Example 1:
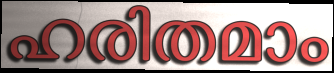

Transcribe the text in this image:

ഹരിതമാം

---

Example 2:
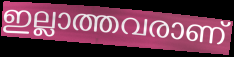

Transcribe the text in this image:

ഇല്ലാത്തവരാണ്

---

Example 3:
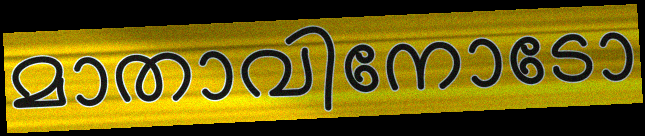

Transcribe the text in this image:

മാതാവിനോടോ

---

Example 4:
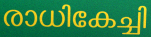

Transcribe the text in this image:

രാധികേച്ചി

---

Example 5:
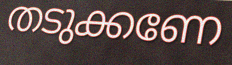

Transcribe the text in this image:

തടുക്കണേ